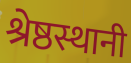
श्रेष्ठस्थानी